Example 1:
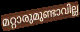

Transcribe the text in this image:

മറ്റാരുമുണ്ടാവില്ല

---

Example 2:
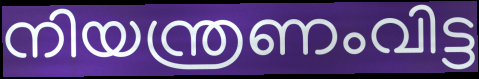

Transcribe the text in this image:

നിയന്ത്രണംവിട്ട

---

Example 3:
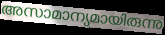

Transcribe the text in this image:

അസാമാന്യമായിരുന്നു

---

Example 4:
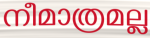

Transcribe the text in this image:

നീമാത്രമല്ല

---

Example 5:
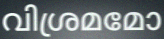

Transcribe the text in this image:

വിശ്രമമോ